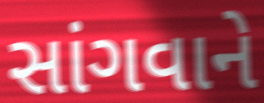
સાંગવાને